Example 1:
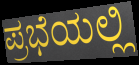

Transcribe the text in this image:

ಪ್ರಭೆಯಲ್ಲಿ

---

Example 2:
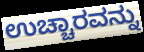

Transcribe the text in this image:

ಉಚ್ಚಾರವನ್ನು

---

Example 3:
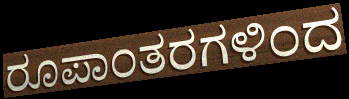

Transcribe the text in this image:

ರೂಪಾಂತರಗಳಿಂದ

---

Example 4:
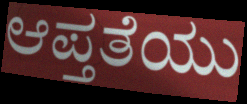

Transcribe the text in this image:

ಆಪ್ತತೆಯು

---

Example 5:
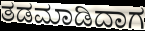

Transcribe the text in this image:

ತಡಮಾಡಿದಾಗ